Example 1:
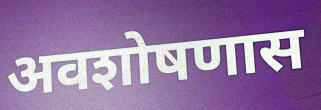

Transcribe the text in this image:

अवशोषणास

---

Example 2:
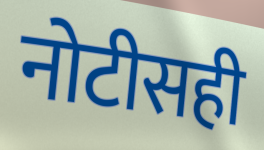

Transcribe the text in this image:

नोटीसही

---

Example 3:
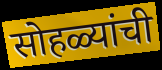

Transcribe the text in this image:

सोहळ्यांची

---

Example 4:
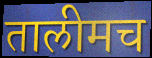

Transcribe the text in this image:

तालीमच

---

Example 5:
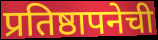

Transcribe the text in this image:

प्रतिष्ठापनेची